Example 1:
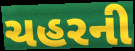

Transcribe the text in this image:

ચહરની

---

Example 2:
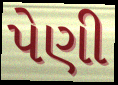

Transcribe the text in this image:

પેણી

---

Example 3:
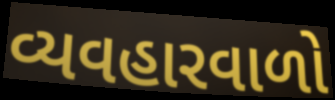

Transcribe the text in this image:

વ્યવહારવાળો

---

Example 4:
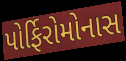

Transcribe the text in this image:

પોર્ફિરોમોનાસ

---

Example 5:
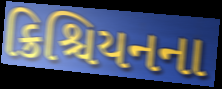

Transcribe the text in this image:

ક્રિશ્ચિયનના